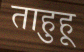
ताहुहू